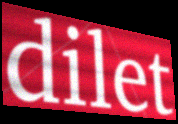
dilet